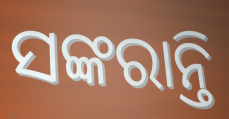
ସଙ୍କରାନ୍ତି